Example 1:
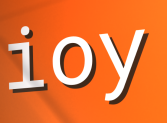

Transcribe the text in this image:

ioy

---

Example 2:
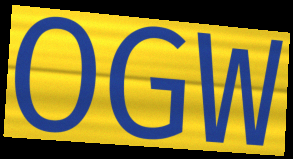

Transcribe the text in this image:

OGW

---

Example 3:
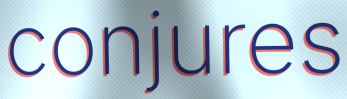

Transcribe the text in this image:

conjures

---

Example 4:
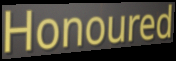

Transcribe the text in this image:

Honoured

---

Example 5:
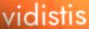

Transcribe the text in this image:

vidistis